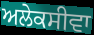
ਅਲੇਕਸੀਵਾ